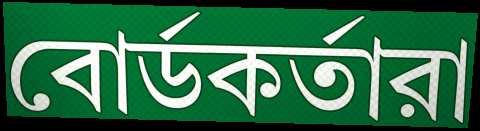
বোর্ডকর্তারা